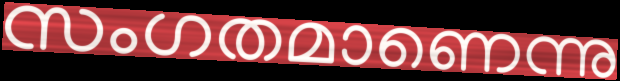
സംഗതമാണെന്നു